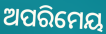
ଅପରିମେୟ